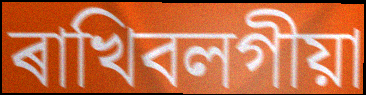
ৰাখিবলগীয়া